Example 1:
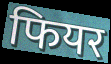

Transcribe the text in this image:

फियर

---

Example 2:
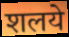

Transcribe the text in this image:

शलये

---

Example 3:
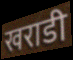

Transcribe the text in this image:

खराडी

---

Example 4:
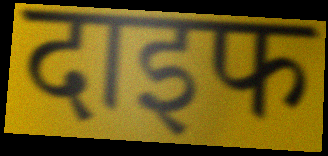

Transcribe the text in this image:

दाइफ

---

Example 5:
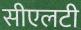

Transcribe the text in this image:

सीएलटी